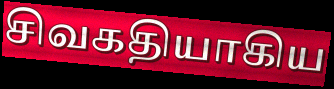
சிவகதியாகிய